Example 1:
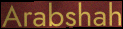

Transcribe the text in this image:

Arabshah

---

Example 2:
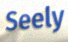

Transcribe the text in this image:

Seely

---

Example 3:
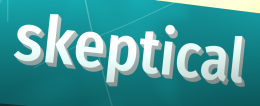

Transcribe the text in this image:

skeptical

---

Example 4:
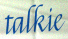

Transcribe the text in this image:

talkie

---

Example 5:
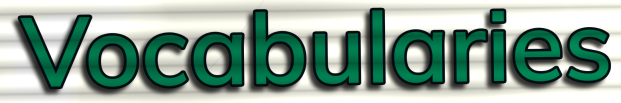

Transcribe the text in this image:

Vocabularies